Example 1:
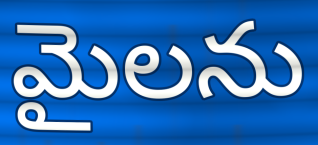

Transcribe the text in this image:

మైలను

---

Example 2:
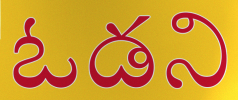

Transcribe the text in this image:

ఓడని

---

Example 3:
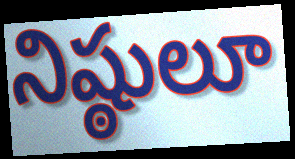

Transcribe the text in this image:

నిష్ఠులూ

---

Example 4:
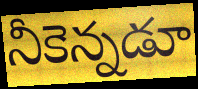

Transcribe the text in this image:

నీకెన్నడూ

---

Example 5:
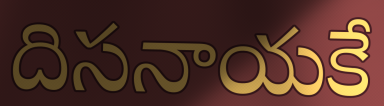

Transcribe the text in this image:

దిసనాయకే